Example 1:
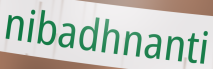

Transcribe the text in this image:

nibadhnanti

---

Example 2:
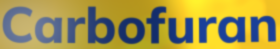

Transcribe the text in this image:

Carbofuran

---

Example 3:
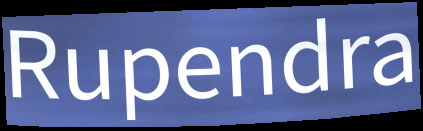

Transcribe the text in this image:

Rupendra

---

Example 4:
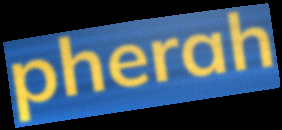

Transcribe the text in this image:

pherah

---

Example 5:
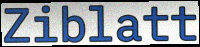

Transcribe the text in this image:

Ziblatt